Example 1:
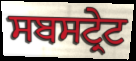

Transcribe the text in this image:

ਸਬਸਟ੍ਰੇਟ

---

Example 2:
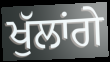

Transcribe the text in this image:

ਖੁੱਲਾਂਗੇ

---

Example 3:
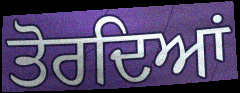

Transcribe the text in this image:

ਤੋਰਦਿਆਂ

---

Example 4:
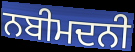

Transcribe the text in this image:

ਨਬੀਮਦਨੀ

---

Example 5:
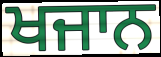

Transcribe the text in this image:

ਖਜਾਨ